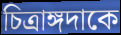
চিত্রাঙ্গদাকে